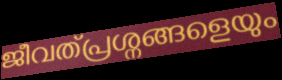
ജീവത്പ്രശ്നങ്ങളെയും